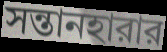
সন্তানহারার